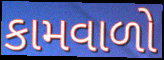
કામવાળો